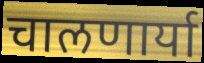
चालणार्या